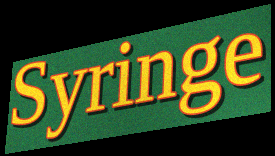
Syringe